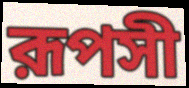
রূপসী